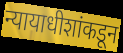
न्यायाधीशांकडून